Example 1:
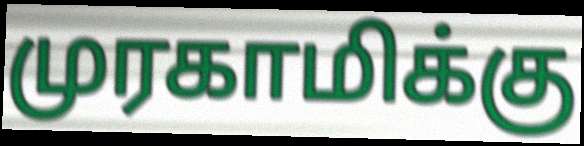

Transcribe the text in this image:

முரகாமிக்கு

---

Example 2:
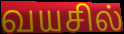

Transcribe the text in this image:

வயசில்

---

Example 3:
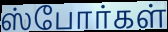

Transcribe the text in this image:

ஸ்போர்கள்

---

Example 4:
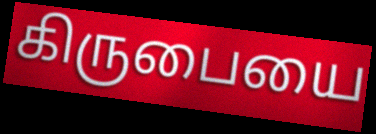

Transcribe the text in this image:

கிருபையை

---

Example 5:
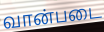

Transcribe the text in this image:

வான்படை